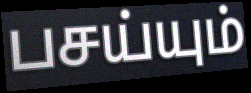
பசய்யும்